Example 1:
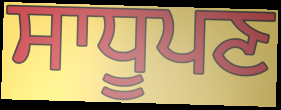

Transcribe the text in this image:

ਸਾਧੂਪਣ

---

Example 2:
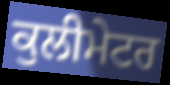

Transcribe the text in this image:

ਕੁਲੀਮੇਟਰ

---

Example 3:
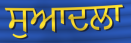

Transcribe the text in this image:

ਸੁਆਦਲਾ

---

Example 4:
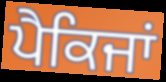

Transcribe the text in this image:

ਪੈਕਿਜਾਂ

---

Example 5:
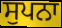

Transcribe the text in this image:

ਸੁਪਨਾ